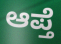
ಆಪ್ತೆ